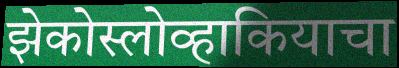
झेकोस्लोव्हाकियाचा